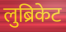
लुब्रिकेट